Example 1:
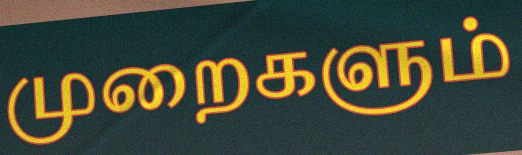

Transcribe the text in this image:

முறைகளும்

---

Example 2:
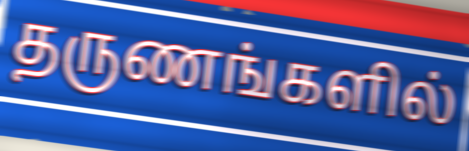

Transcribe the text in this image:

தருணங்களில்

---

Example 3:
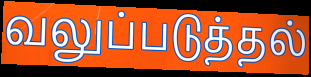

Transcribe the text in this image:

வலுப்படுத்தல்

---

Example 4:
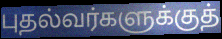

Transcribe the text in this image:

புதல்வர்களுக்குத்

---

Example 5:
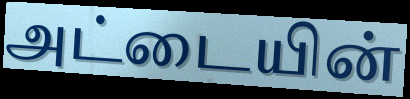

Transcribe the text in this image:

அட்டையின்